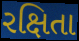
રક્ષિતા